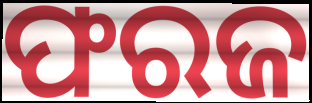
ଫରଜ